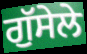
ਗੁੱਸੇਲੇ